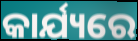
କାର୍ଯ୍ୟରେ